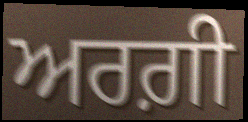
ਅਰਗ਼ੀ